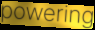
powering